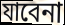
যাবেনা